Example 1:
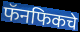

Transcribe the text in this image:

फॅनफिकचे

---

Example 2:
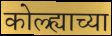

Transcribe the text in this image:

कोल्ह्याच्या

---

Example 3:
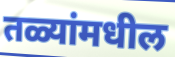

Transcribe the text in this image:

तळ्यांमधील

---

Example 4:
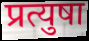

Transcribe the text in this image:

प्रत्युषा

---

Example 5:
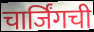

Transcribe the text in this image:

चार्जिंगची